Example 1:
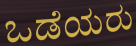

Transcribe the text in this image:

ಒಡೆಯರು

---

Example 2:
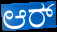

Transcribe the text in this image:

ಆರ್‍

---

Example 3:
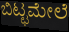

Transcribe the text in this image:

ಬಿಟ್ಟಮೇಲೆ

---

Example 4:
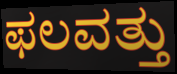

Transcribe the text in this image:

ಫಲವತ್ತು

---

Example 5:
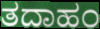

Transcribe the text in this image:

ತದಾಹಂ